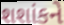
શશાંકને